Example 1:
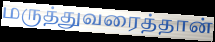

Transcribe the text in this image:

மருத்துவரைத்தான்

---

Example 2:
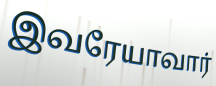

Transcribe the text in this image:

இவரேயாவார்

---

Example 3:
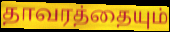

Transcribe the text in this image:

தாவரத்தையும்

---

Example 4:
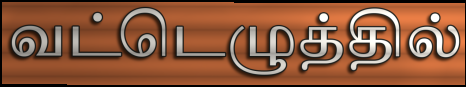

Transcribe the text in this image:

வட்டெழுத்தில்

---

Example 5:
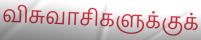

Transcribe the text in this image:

விசுவாசிகளுக்குக்